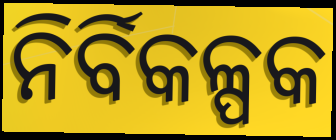
ନିର୍ବିକଳ୍ପକ